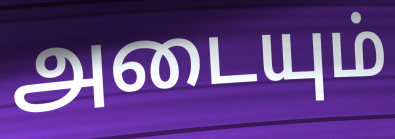
அடையும்